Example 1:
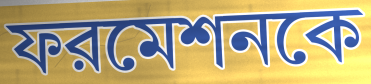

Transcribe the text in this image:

ফরমেশনকে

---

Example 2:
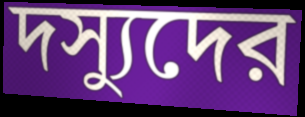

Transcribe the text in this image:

দস্যুদের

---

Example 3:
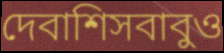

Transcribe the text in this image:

দেবাশিসবাবুও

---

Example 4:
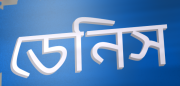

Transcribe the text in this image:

ডেনিস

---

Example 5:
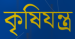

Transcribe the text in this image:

কৃষিযন্ত্র